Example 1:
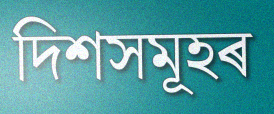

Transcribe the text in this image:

দিশসমূহৰ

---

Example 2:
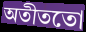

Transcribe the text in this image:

অতীততো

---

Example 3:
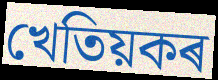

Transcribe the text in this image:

খেতিয়কৰ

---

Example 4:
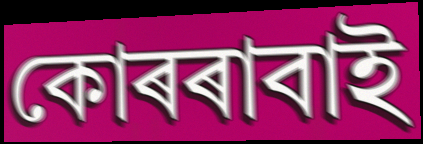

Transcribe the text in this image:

কোৰৰাবাই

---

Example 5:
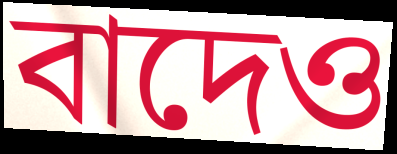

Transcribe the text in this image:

বাদেও